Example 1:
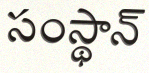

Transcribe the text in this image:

సంస్థాన్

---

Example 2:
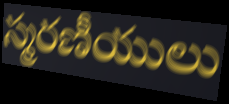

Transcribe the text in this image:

స్మరణీయులు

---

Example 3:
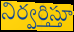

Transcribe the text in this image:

నిర్వర్తిస్తూ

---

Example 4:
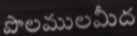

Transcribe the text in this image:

పొలములమీద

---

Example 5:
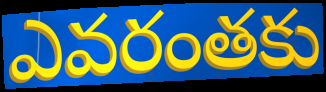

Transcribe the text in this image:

ఎవరంతకు